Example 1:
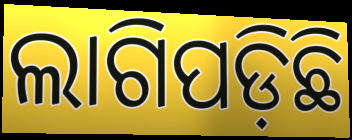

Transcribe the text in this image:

ଲାଗିପଡ଼ିଛି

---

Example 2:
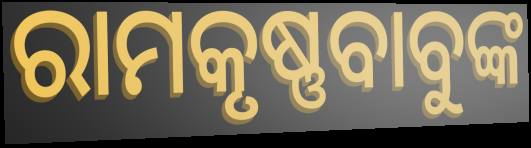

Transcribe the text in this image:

ରାମକୃଷ୍ଣବାବୁଙ୍କ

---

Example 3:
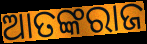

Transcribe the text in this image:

ଆତଙ୍କରାଜ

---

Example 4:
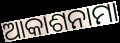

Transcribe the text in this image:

ଆକାଶନାମା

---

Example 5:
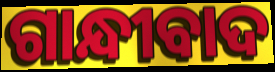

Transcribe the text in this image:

ଗାନ୍ଧୀବାଦ